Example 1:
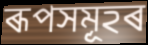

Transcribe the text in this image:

ৰূপসমূহৰ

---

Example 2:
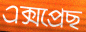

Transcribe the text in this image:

এক্সপ্ৰেছ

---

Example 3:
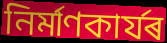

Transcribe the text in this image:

নিৰ্মাণকাৰ্যৰ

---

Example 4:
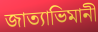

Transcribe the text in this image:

জাত্যাভিমানী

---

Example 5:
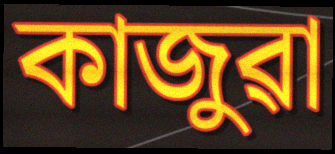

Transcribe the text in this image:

কাজুৱা